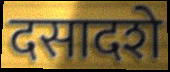
दसादशे